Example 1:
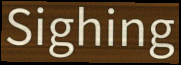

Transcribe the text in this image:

Sighing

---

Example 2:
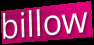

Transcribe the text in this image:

billow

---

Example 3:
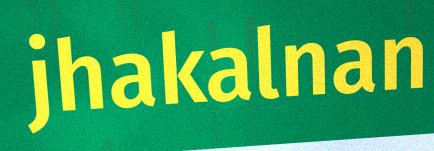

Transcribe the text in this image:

jhakalnan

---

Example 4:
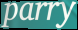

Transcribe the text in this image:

parry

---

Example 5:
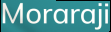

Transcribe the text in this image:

Moraraji